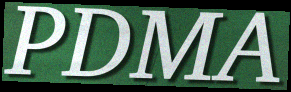
PDMA